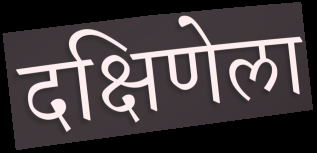
दक्षिणेला